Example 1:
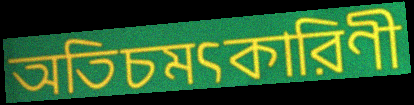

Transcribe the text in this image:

অতিচমৎকারিণী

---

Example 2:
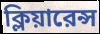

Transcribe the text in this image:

ক্লিয়ারেন্স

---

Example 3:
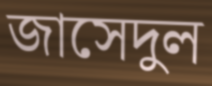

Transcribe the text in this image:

জাসেদুল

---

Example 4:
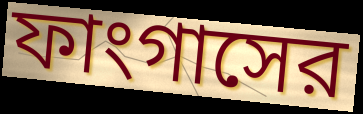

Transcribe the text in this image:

ফাংগাসের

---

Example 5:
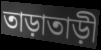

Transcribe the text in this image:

তাড়াতাড়ী